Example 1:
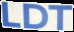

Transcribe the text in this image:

LDT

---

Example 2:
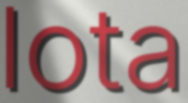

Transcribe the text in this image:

lota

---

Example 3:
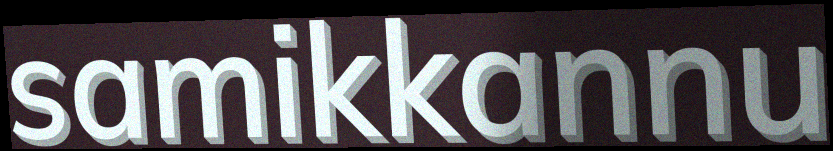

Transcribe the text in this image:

samikkannu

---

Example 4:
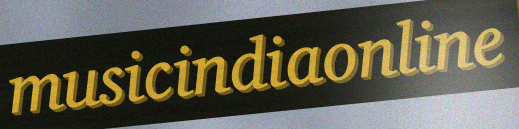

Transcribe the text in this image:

musicindiaonline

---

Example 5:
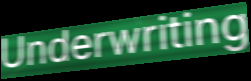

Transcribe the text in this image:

Underwriting